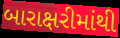
બારાક્ષરીમાંથી